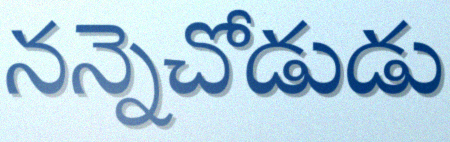
నన్నెచోడుడు